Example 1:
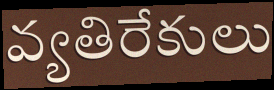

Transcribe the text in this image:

వ్యతిరేకులు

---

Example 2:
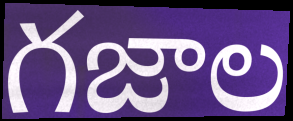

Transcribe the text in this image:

గజాల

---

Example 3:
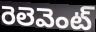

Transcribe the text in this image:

రెలెవెంట్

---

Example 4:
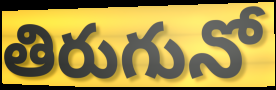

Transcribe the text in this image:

తిరుగునో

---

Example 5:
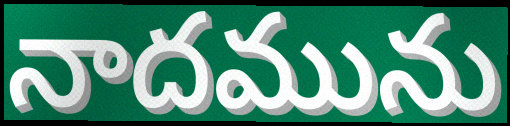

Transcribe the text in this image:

నాదమును